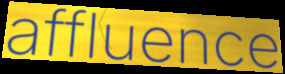
affluence